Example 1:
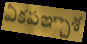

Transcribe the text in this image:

ఏకపఞ్చాశ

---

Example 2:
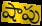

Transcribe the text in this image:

షాపు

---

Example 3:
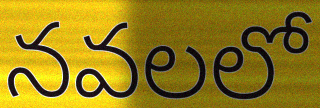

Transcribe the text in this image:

నవలలో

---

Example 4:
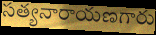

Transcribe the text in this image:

సత్యనారాయణగారు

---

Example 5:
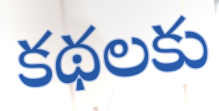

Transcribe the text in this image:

కథలకు